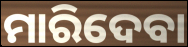
ମାରିଦେବା